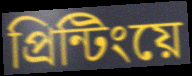
প্রিন্টিংয়ে